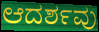
ಆದರ್ಶವು